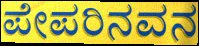
ಪೇಪರಿನವನ